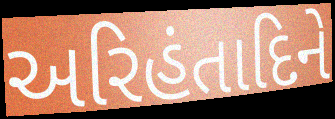
અરિહંતાદિને